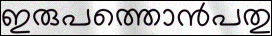
ഇരുപത്തൊൻപതു